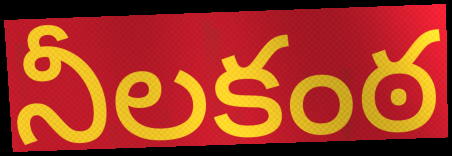
నీలకంఠ